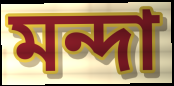
মন্দা